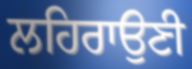
ਲਹਿਰਾਉਣੀ